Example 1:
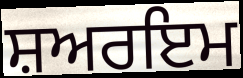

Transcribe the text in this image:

ਸ਼ਅਰਇਮ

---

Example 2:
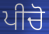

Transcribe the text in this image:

ਪੀਚੋ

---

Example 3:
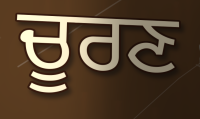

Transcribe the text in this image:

ਚੂਰਣ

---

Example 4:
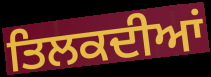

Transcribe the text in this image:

ਤਿਲਕਦੀਆਂ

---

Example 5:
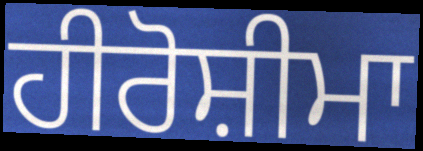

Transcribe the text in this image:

ਹੀਰੋਸ਼ੀਮਾ